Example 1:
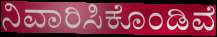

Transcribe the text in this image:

ನಿವಾರಿಸಿಕೊಂಡಿವೆ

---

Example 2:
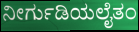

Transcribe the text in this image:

ನೀರ್ಗುಡಿಯಲೈತಂ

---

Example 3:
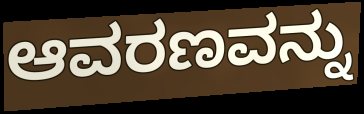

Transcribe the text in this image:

ಆವರಣವನ್ನು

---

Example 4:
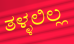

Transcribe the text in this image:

ತಳ್ಳಲಿಲ್ಲ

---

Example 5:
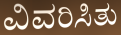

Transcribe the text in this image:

ವಿವರಿಸಿತು